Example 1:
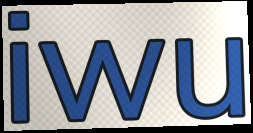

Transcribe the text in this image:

iwu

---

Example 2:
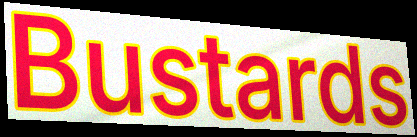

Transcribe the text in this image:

Bustards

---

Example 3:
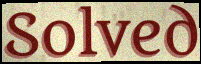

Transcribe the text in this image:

Solved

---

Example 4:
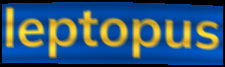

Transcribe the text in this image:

leptopus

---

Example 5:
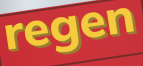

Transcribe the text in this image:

regen